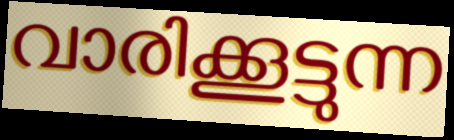
വാരിക്കൂട്ടുന്ന